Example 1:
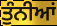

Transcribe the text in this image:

ਤੁੰਨੀਆਂ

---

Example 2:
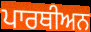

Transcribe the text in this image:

ਪਾਰਥੀਅਨ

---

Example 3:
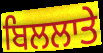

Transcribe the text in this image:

ਬਿਲਲਾਤੇ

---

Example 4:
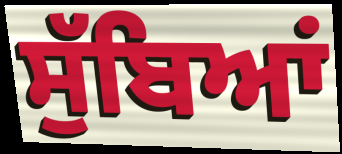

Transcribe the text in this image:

ਸੁੱਬਿਆਂ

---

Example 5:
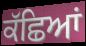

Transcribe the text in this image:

ਕੱਛਿਆਂ